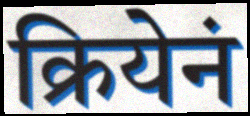
क्रियेनं